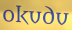
okudu